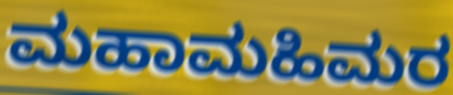
ಮಹಾಮಹಿಮರ